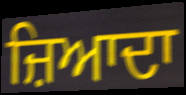
ਜ਼ਿਆਦਾ